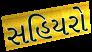
સહિયરો